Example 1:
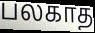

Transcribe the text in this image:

பலகாத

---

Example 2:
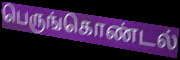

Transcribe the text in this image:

பெருங்கொண்டல்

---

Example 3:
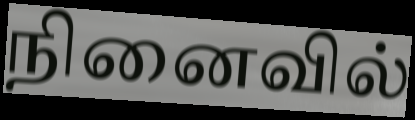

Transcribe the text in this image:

நினைவில்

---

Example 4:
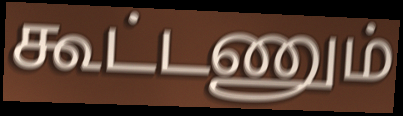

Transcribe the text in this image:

கூட்டணும்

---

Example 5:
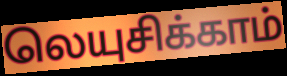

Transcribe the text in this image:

லெயுசிக்காம்